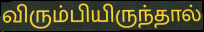
விரும்பியிருந்தால்